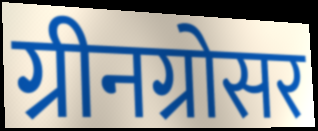
ग्रीनग्रोसर